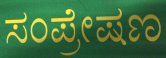
ಸಂಪ್ರೇಷಣ